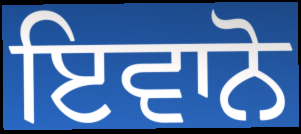
ਇਵਾਨੋ